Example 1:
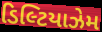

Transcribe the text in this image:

ડિલ્ટિયાઝેમ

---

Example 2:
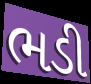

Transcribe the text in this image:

ભડી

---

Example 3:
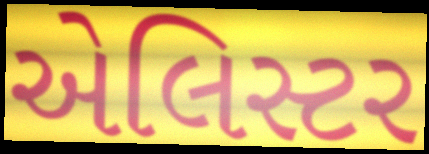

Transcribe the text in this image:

એલિસ્ટર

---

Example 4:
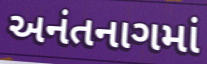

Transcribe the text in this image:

અનંતનાગમાં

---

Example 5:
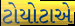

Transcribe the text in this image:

ટોયોટાએ